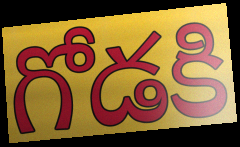
గోడకి